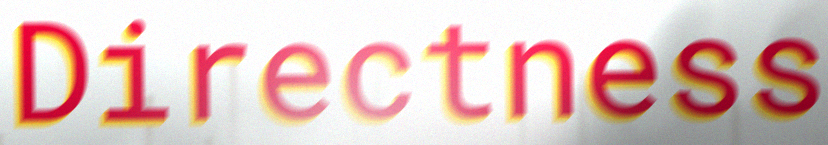
Directness